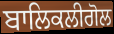
ਬਾਲਿਕਲੀਗੋਲ